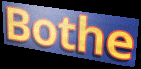
Bothe